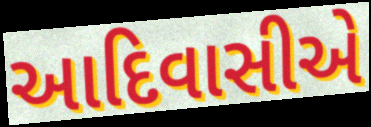
આદિવાસીએ